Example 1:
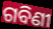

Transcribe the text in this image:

ଗବିଣୀ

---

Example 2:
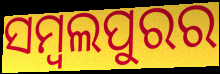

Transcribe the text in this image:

ସମ୍ୱଲପୁରର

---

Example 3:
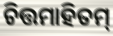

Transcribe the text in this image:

ଚିତ୍ତମାହିତମ୍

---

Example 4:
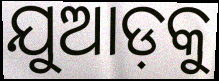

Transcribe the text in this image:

ଯୁଆଡ଼କୁ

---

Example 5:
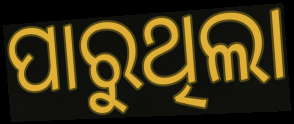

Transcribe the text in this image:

ପାରୁଥିଲା